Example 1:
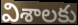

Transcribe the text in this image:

విశాలకు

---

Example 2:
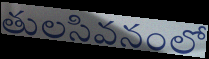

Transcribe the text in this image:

తులసివనంలో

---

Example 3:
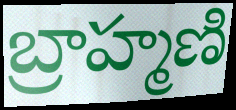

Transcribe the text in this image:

బ్రాహ్మణి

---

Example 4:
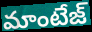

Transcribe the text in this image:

మాంటేజ్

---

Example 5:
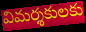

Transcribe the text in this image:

విమర్శకులకు